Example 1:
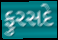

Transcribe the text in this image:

ફુરસદે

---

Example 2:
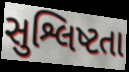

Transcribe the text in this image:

સુશ્લિષ્ટતા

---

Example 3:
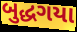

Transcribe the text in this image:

બુદ્ધગયા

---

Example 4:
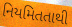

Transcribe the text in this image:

નિયમિતતાથી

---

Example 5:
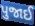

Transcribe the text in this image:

પુજાઈ